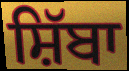
ਸ਼ਿੱਬਾ